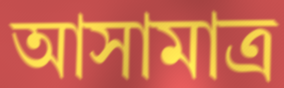
আসামাত্র